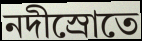
নদীস্রোতে